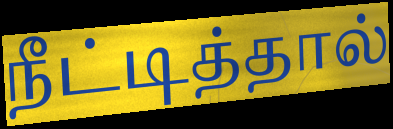
நீட்டித்தால்